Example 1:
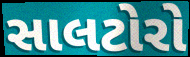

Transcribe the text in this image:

સાલટોરો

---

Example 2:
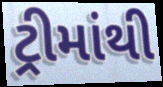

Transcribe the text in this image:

ટ્રીમાંથી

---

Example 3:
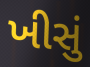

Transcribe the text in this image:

ખીસું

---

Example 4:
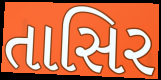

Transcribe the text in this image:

તાસિર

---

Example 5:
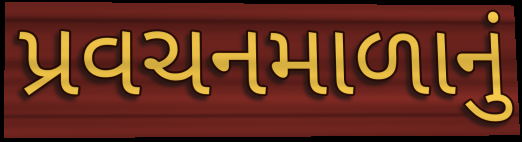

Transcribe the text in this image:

પ્રવચનમાળાનું